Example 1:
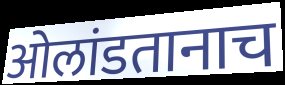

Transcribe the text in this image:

ओलांडतानाच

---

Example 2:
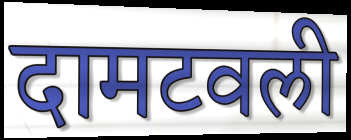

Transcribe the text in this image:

दामटवली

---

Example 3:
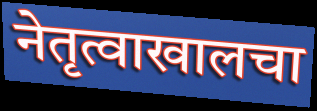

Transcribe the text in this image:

नेतृत्वाखालचा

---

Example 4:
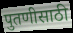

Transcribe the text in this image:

पुतणीसाठी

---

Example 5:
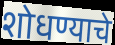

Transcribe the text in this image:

शोधण्याचे